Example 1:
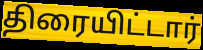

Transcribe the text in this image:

திரையிட்டார்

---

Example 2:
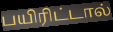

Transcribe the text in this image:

பயிரிட்டால்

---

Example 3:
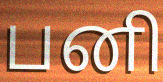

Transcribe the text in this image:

பனி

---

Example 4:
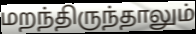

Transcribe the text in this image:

மறந்திருந்தாலும்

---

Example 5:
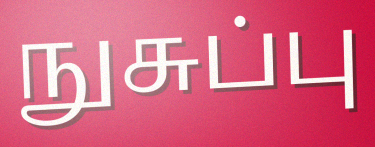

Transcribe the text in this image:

நுசுப்பு